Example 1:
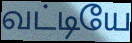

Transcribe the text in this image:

வட்டியே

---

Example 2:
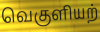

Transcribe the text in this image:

வெகுளியற்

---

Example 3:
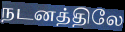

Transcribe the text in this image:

நடனத்திலே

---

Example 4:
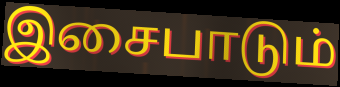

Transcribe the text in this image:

இசைபாடும்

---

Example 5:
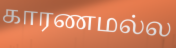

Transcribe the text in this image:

காரணமல்ல